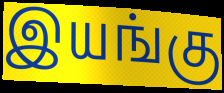
இயங்கு